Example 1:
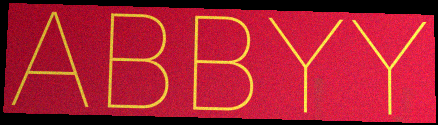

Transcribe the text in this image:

ABBYY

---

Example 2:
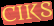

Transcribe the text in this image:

CIKS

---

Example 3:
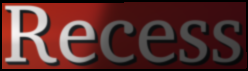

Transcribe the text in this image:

Recess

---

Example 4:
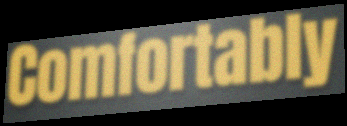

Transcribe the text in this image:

Comfortably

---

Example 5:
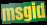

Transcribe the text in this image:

msgid